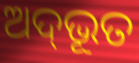
ଅଦ୍‌ଭୂତ